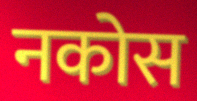
नकोस